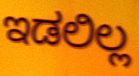
ಇಡಲಿಲ್ಲ